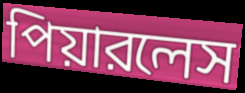
পিয়ারলেস